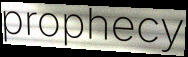
prophecy